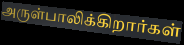
அருள்பாலிக்கிறார்கள்